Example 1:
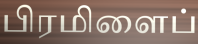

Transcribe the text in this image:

பிரமிளைப்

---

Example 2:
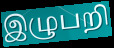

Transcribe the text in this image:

இழுபறி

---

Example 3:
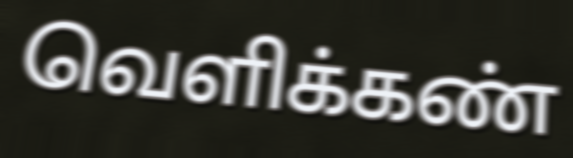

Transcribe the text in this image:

வெளிக்கண்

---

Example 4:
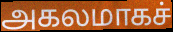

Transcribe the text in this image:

அகலமாகச்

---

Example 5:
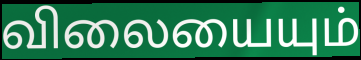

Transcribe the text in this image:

விலையையும்